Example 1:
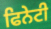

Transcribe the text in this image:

ਫਿਨੇਟੀ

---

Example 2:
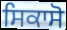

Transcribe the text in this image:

ਸਿਕਾਸੋ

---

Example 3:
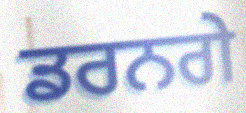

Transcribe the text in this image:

ਡਰਨਗੇ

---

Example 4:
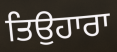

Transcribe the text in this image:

ਤਿਉਹਾਰਾ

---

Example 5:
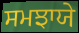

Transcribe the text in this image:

ਸਮਝਾਯੇ